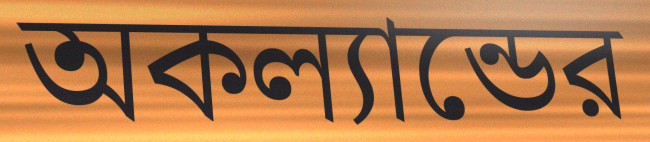
অকল্যান্ডের